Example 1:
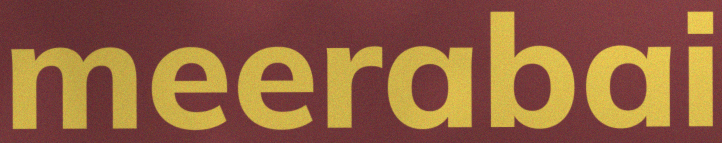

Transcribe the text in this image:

meerabai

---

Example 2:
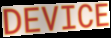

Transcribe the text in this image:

DEVICE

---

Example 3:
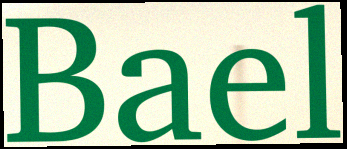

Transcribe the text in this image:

Bael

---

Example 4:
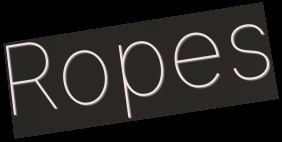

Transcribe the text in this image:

Ropes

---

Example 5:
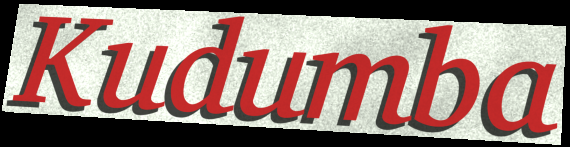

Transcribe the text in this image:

Kudumba